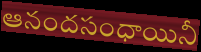
ఆనందసంధాయినీ